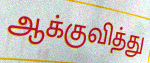
ஆக்குவித்து